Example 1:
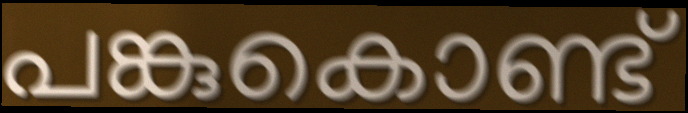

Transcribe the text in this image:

പങ്കുകൊണ്ട്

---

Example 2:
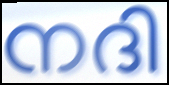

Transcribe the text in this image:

നദി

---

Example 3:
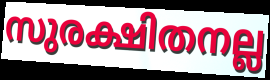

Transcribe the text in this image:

സുരക്ഷിതനല്ല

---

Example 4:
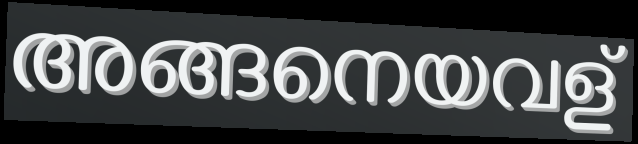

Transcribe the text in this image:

അങ്ങനെയവള്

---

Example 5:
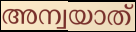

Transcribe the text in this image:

അന്വയാത്